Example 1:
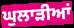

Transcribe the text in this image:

ਘੁਲਾੜੀਆਂ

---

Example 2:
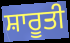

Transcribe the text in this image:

ਸ਼ਾਰੂਤੀ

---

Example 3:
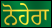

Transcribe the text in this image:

ਨੋਹੇਰਾ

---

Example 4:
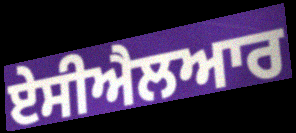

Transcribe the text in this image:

ਏਸੀਐਲਆਰ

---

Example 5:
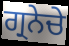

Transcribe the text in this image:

ਗ੍ਰਨੇਚੇ